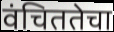
वंचिततेचा